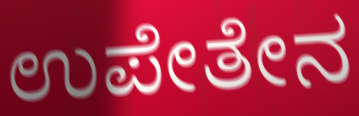
ಉಪೇತೇನ